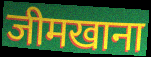
जीमखाना